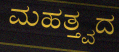
ಮಹತ್ತ್ವದ